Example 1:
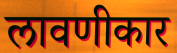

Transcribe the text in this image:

लावणीकार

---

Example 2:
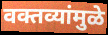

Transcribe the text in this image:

वक्तव्यांमुळे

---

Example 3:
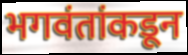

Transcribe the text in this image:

भगवंतांकडून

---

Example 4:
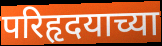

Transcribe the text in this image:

परिहृदयाच्या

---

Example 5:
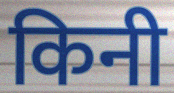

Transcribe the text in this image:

किनी